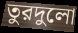
তুরদুলো